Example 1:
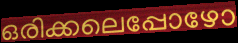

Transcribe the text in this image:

ഒരിക്കലെപ്പോഴോ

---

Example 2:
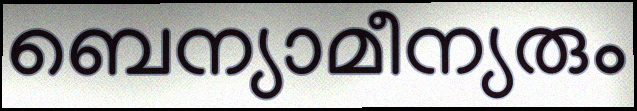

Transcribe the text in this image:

ബെന്യാമീന്യരും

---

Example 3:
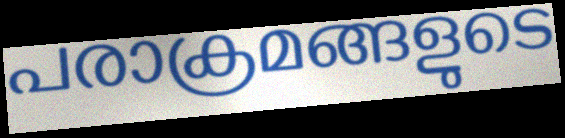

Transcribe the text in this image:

പരാക്രമങ്ങളുടെ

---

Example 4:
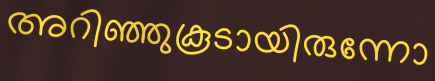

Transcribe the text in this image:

അറിഞ്ഞുകൂടായിരുന്നോ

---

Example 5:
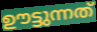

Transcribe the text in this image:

ഊട്ടുന്നത്